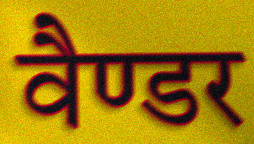
वैण्डर